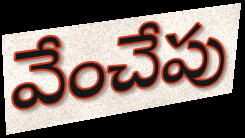
వేంచేపు